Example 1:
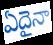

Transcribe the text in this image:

ఏదైనా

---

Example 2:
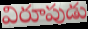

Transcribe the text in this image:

విరూపుడు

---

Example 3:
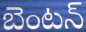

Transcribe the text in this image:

బెంటన్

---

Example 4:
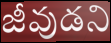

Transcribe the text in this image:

జీవుడని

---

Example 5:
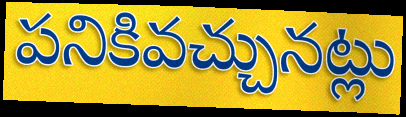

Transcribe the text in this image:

పనికివచ్చునట్లు